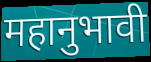
महानुभावी